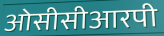
ओसीसीआरपी